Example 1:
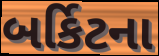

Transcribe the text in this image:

બર્કિટના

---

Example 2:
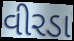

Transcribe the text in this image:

વીરડા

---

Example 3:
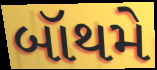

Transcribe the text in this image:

બૉથમે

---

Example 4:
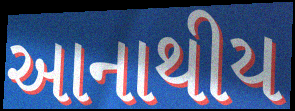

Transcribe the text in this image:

આનાથીય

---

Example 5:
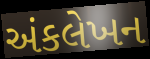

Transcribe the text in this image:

અંકલેખન